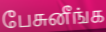
பேசுனீங்க